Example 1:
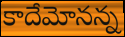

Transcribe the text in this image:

కాదేమోనన్న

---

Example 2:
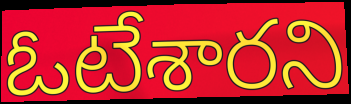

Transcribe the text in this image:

ఓటేశారని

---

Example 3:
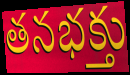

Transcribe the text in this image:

తనభక్తు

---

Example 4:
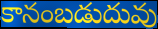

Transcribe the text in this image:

కానంబడుదువు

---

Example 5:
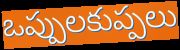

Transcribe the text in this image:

ఒప్పులకుప్పలు